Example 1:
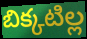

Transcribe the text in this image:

బిక్కటిల్ల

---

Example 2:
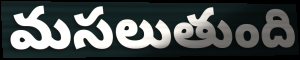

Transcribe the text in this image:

మసలుతుంది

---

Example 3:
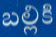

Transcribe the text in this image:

బల్లికి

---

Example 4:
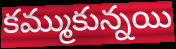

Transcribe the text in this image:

కమ్ముకున్నయి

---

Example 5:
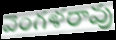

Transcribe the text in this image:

వెంగళరావు